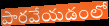
పారవేయడంలో